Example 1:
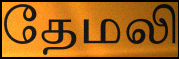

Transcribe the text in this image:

தேமலி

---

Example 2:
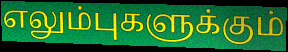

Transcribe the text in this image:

எலும்புகளுக்கும்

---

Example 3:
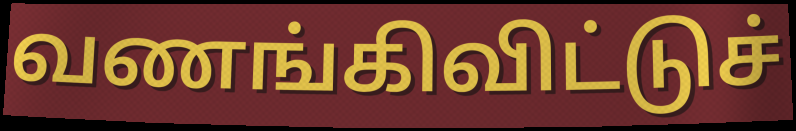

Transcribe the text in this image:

வணங்கிவிட்டுச்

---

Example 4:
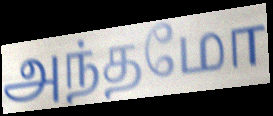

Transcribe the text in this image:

அந்தமோ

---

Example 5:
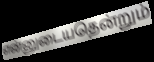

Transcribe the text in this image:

என்னுடையதென்றும்